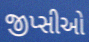
જીપ્સીઓ